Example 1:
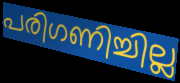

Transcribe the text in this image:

പരിഗണിച്ചില്ല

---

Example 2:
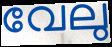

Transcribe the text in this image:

വേലു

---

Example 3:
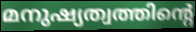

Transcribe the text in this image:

മനുഷ്യത്വത്തിന്റെ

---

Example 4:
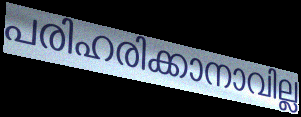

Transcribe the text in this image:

പരിഹരിക്കാനാവില്ല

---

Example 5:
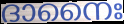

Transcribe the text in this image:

ദാനൈഃ